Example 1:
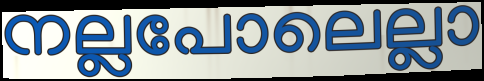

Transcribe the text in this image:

നല്ലപോലെല്ലാ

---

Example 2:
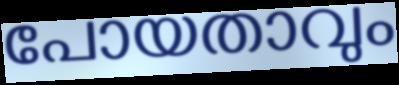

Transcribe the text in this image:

പോയതാവും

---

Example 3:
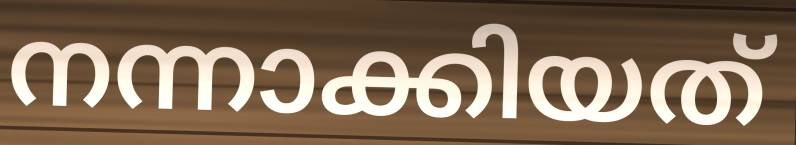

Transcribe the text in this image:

നന്നാക്കിയത്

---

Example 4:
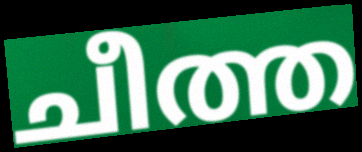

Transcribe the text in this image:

ചീത്ത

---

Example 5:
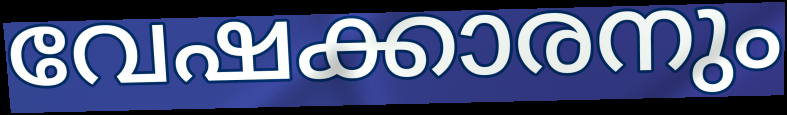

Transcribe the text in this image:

വേഷക്കാരനും